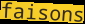
faisons